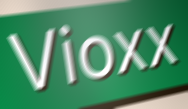
Vioxx